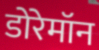
डोरेमॉन